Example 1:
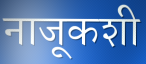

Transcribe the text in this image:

नाजूकशी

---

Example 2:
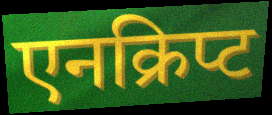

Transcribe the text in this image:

एनक्रिप्ट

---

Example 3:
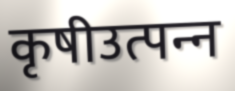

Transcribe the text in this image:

कृषीउत्पन्न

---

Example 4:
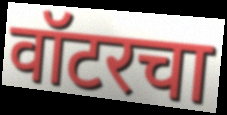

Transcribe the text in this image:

वॉटरचा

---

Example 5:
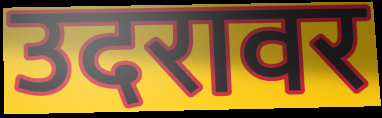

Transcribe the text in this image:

उदरावर